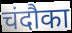
चंदौका